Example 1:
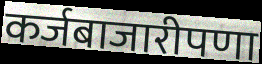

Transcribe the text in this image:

कर्जबाजारीपणा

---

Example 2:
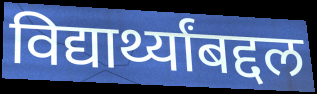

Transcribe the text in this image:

विद्यार्थ्यांबद्दल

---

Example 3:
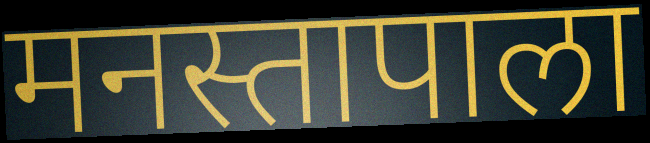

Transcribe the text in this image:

मनस्तापाला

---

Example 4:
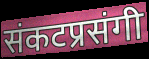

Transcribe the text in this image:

संकटप्रसंगी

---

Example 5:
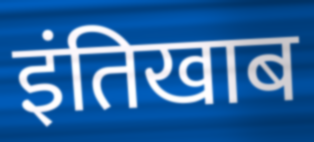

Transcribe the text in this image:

इंतिखाब